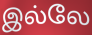
இல்லே